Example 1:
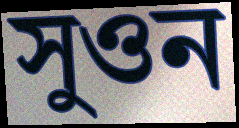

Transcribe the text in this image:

সুওন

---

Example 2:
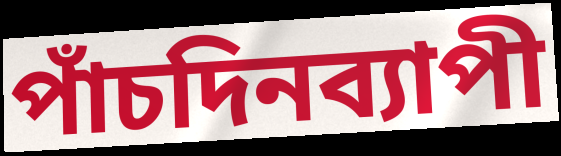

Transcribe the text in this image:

পাঁচদিনব্যাপী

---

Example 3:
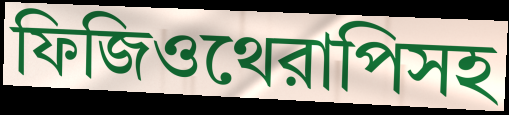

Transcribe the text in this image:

ফিজিওথেরাপিসহ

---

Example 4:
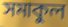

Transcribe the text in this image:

সমাকুল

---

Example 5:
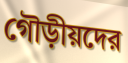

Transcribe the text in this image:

গৌড়ীয়দের